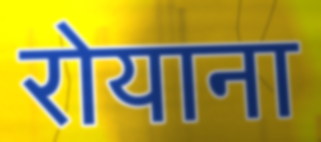
रोयाना